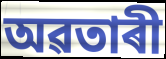
অৱতাৰী